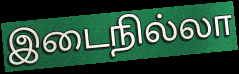
இடைநில்லா